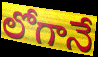
లోగానే